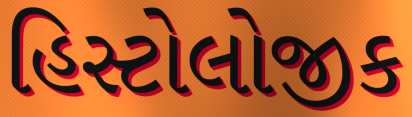
હિસ્ટોલોજીક